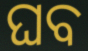
ଘବ